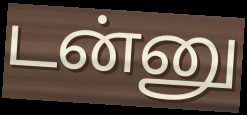
டன்னு